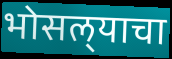
भोसल्याचा